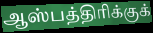
ஆஸ்பத்திரிக்குக்